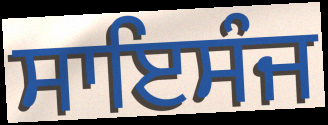
ਸਾਇਸੰਜ